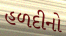
હળદીનો